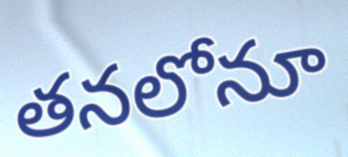
తనలోనూ